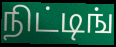
நிட்டிங்